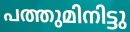
പത്തുമിനിട്ടു